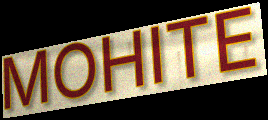
MOHITE